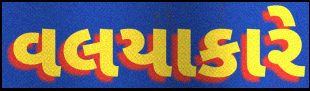
વલયાકારે